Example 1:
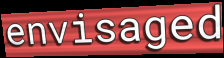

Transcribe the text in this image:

envisaged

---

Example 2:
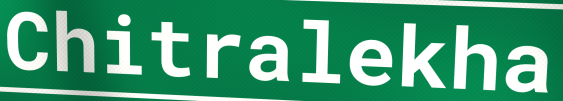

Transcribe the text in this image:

Chitralekha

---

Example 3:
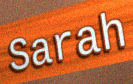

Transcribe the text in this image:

Sarah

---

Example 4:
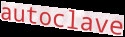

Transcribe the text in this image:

autoclave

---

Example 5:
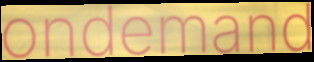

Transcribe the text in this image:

ondemand